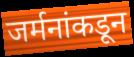
जर्मनांकडून